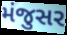
મંજુસર